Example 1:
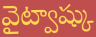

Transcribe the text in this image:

వైట్వాష్కు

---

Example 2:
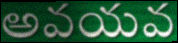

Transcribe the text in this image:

అవయవ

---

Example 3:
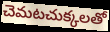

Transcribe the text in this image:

చెమటచుక్కలతో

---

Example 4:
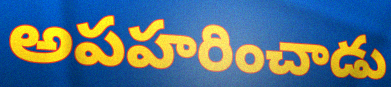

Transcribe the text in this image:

అపహరించాడు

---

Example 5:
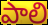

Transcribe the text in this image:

పాలి